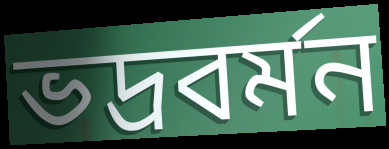
ভদ্রবর্মন